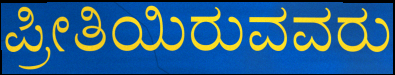
ಪ್ರೀತಿಯಿರುವವರು